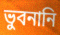
ভুবনানি